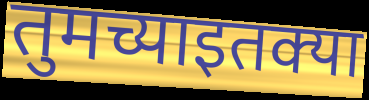
तुमच्याइतक्या